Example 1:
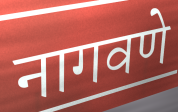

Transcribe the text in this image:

नागवणे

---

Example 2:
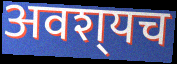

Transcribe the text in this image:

अवश्यच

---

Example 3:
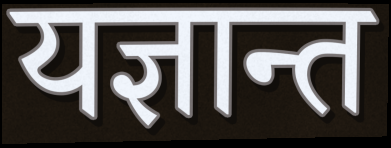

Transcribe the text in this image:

यज्ञान्त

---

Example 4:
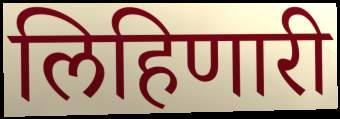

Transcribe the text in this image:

लिहिणारी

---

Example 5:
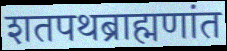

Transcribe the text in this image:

शतपथब्राह्मणांत